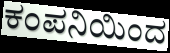
ಕಂಪನಿಯಿಂದ